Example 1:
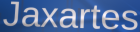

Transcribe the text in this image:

Jaxartes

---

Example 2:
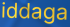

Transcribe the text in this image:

iddaga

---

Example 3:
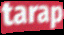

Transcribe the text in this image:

tarap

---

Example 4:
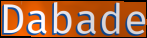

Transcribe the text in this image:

Dabade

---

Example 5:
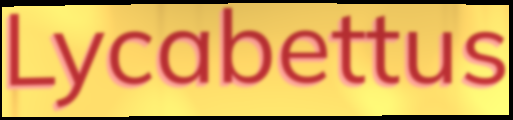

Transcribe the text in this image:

Lycabettus